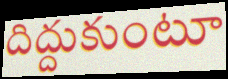
దిద్దుకుంటూ